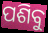
ପଶିବୁ